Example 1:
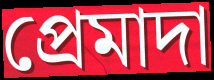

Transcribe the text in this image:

প্ৰেমাদা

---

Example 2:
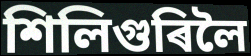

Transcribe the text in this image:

শিলিগুৰিলৈ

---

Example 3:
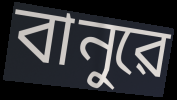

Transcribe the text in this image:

বানুৱে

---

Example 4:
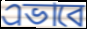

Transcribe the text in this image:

এভাবে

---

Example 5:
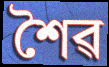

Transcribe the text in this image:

শৈৱ